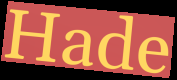
Hade